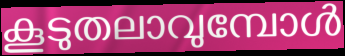
കൂടുതലാവുമ്പോൾ